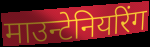
माउन्टेनियरिंग